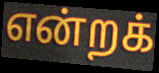
என்றக்